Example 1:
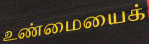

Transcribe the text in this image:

உண்மையைக்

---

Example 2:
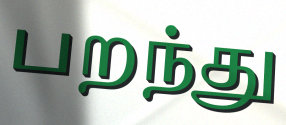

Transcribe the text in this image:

பறந்து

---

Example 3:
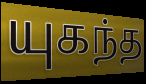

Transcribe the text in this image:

யுகந்த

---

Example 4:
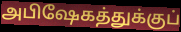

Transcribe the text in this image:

அபிஷேகத்துக்குப்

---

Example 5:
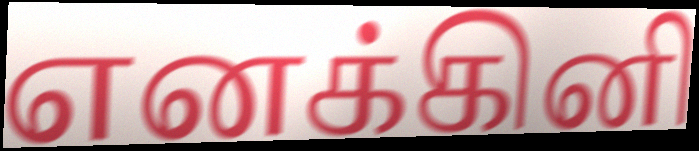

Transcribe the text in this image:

எனக்கினி